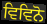
ਵਿਵਿਨੋ